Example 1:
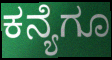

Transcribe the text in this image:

ಕನ್ಯೆಗೂ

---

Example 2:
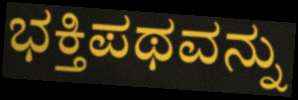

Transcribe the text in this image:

ಭಕ್ತಿಪಥವನ್ನು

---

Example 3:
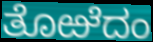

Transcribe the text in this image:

ತೊಱೆದಂ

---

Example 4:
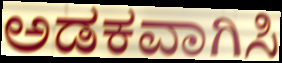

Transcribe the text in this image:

ಅಡಕವಾಗಿಸಿ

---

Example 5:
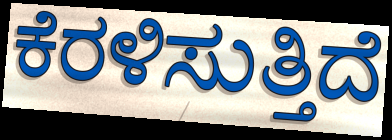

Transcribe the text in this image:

ಕೆರಳಿಸುತ್ತಿದೆ